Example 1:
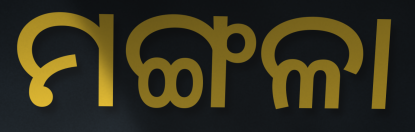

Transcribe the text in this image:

ମଙ୍ଗଳା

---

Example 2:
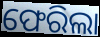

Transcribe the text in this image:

ଫେରିଲା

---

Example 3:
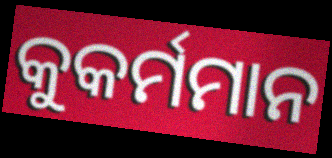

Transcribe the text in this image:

କୁକର୍ମମାନ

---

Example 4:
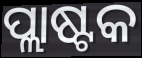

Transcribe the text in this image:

ପ୍ଲାଷ୍ଟକ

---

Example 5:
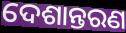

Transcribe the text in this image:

ଦେଶାନ୍ତରଣ